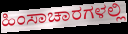
ಹಿಂಸಾಚಾರಗಳಲ್ಲಿ